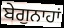
ਬੇਗੁਨਾਹਾਂ